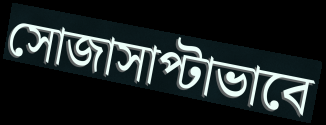
সোজাসাপ্টাভাবে